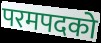
परमपदको